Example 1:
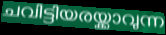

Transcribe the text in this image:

ചവിട്ടിയരയ്ക്കാവുന്ന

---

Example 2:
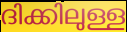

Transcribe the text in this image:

ദിക്കിലുള്ള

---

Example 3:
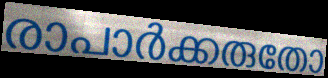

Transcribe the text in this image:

രാപാർക്കരുതോ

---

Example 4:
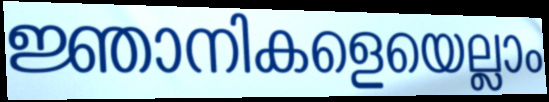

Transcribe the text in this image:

ജ്ഞാനികളെയെല്ലാം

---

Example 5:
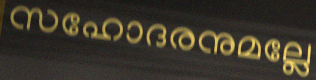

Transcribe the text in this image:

സഹോദരനുമല്ലേ